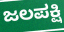
ಜಲಪಕ್ಷಿ